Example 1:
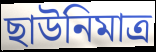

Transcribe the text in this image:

ছাউনিমাত্র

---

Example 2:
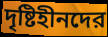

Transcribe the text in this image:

দৃষ্টিহীনদের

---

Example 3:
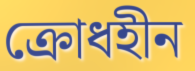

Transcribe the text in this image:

ক্রোধহীন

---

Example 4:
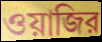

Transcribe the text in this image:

ওয়াজির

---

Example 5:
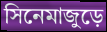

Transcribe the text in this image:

সিনেমাজুড়ে